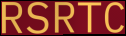
RSRTC